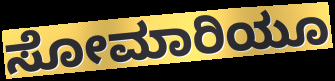
ಸೋಮಾರಿಯೂ